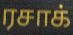
ரசாக்